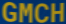
GMCH